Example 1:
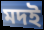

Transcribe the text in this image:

মদই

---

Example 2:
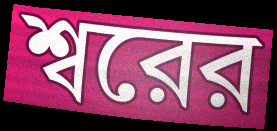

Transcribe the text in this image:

শ্বরের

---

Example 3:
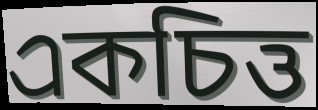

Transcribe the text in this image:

একচিত্ত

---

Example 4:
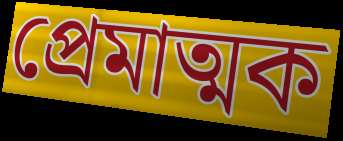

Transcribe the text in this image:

প্রেমাত্মক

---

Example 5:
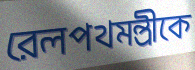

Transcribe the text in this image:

রেলপথমন্ত্রীকে